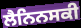
ਲੈਨਿਨਸਕੀ